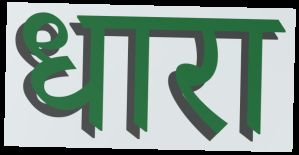
धारा